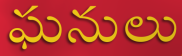
ఘనులు